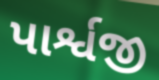
પાર્શ્વજી